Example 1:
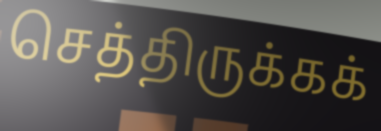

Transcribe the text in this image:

செத்திருக்கக்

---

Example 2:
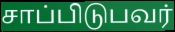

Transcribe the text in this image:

சாப்பிடுபவர்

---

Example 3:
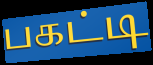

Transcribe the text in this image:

பகட்டி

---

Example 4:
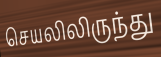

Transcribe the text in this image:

செயலிலிருந்து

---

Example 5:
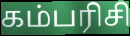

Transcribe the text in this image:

கம்பரிசி